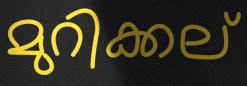
മുറിക്കല്